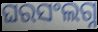
ଘରସଂଲଗ୍ନ